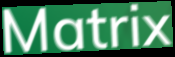
Matrix